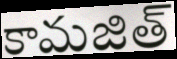
కామజిత్